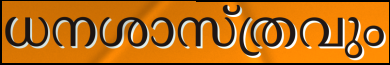
ധനശാസ്ത്രവും